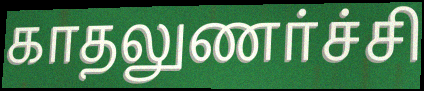
காதலுணர்ச்சி